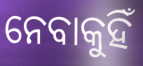
ନେବାକୁହିଁ